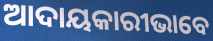
ଆଦାୟକାରୀଭାବେ